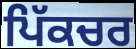
ਪਿੱਕਚਰ